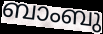
ബാംബു